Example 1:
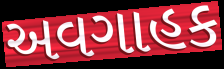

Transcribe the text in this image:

અવગાહક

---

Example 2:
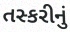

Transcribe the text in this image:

તસ્કરીનું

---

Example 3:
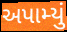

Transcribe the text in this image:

અપામ્યું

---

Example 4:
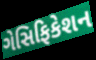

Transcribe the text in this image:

ગેસિફિકેશન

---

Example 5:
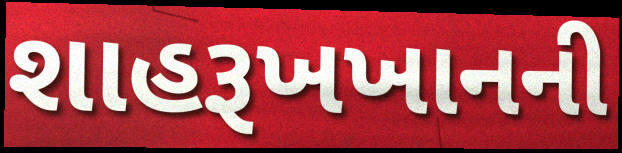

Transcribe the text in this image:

શાહરૂખખાનની